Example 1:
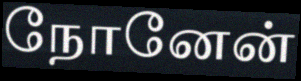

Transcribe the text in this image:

நோனேன்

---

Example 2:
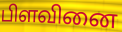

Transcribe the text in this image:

பிளவினை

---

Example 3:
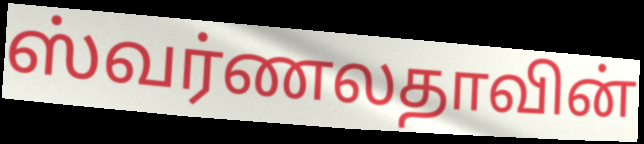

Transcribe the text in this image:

ஸ்வர்ணலதாவின்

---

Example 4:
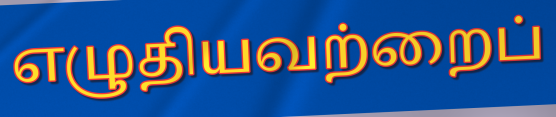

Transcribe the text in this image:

எழுதியவற்றைப்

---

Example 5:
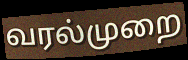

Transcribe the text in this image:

வரல்முறை